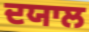
ਦਯਾਲ